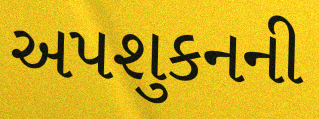
અપશુકનની